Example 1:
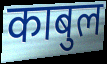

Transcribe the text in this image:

काबुल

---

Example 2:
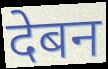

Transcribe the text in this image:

देबन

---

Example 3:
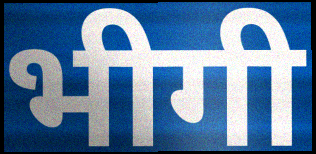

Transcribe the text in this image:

भीगी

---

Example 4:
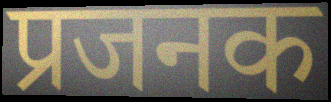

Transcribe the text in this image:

प्रजनक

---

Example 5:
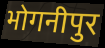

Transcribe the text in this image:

भोगनीपुर